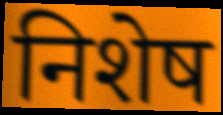
निशेष